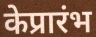
केप्रारंभ